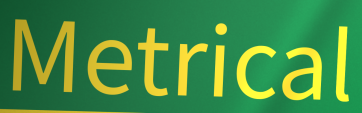
Metrical